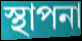
স্থাপনা